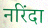
नरिंदा